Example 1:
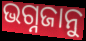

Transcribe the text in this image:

ଭଗ୍ନଜାନୁ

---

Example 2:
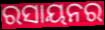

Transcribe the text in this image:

ରସାୟନର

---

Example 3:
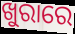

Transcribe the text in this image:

ଖୁରାରେ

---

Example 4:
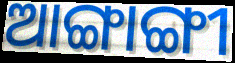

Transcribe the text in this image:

ଆଙ୍ଗାଙ୍ଗୀ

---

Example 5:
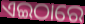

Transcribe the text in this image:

ଏଇଠାରେ